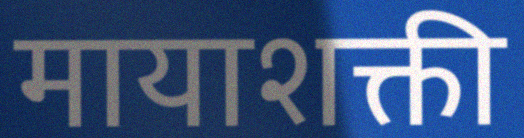
मायाशक्ती